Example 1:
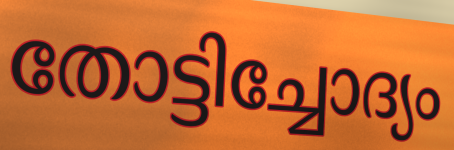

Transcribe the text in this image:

തോട്ടിച്ചോദ്യം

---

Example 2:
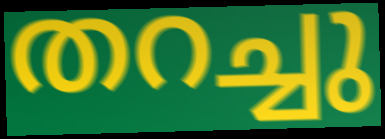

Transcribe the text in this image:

തറച്ചു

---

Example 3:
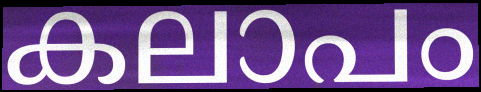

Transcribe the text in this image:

കലാപം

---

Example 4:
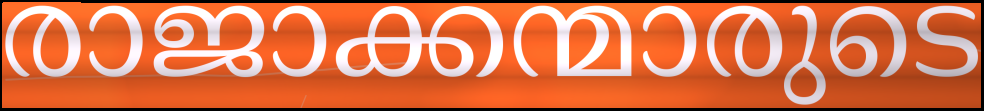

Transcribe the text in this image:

രാജാക്കന്മാരുടെ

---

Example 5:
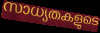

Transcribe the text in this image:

സാധ്യതകളുടെ